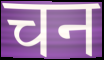
चन